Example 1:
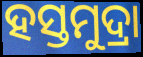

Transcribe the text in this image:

ହସ୍ତମୁଦ୍ରା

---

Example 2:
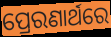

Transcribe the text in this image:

ପ୍ରେରଣାର୍ଥରେ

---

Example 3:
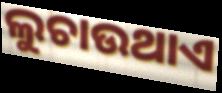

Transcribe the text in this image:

ଲୁଚାଉଥାଏ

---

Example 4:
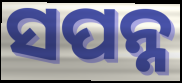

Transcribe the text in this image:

ସପନ୍ନ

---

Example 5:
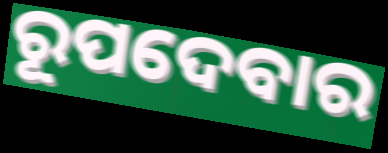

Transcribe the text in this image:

ରୂପଦେବାର